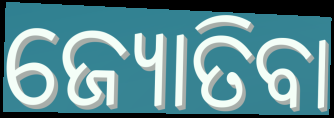
ଜ୍ୟୋତିବା